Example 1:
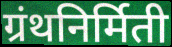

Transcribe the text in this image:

ग्रंथनिर्मिती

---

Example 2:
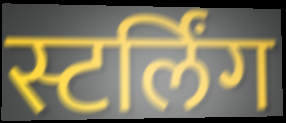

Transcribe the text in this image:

स्टर्लिंग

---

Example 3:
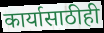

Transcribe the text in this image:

कार्यासाठीही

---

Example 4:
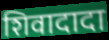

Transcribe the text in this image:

शिवादादा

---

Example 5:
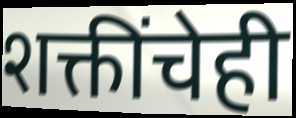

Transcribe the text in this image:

शक्तींचेही